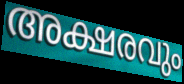
അക്ഷരവും